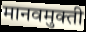
मानवमुक्ती